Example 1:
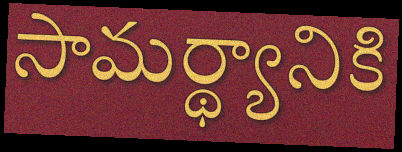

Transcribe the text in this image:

సామర్థ్యానికి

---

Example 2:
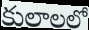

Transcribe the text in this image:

కులాలలో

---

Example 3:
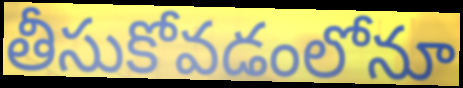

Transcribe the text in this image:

తీసుకోవడంలోనూ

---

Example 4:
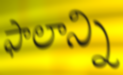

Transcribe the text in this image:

ఫాలాన్ని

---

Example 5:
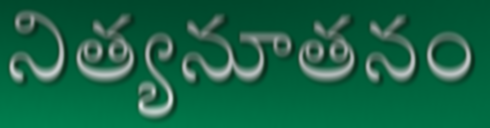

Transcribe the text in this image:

నిత్యనూతనం